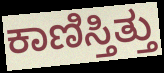
ಕಾಣಿಸ್ತಿತ್ತು